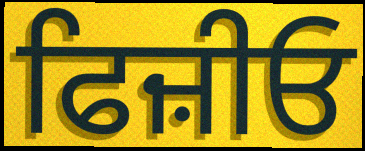
ਫਿਜ਼ੀਓ